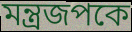
মন্ত্রজপকে